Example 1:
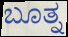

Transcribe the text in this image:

ಬೂತ್ನ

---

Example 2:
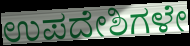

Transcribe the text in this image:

ಉಪದೇಶಿಗಳೇ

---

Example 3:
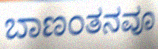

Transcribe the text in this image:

ಬಾಣಂತನವೂ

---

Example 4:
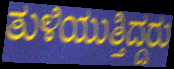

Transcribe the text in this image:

ತುಳಿಯುತ್ತಿದ್ದರು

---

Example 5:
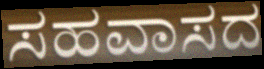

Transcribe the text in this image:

ಸಹವಾಸದ